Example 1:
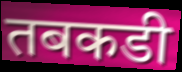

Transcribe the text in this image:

तबकडी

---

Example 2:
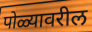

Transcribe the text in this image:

पोळ्यावरील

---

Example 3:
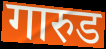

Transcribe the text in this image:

गारुड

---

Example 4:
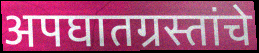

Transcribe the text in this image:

अपघातग्रस्तांचे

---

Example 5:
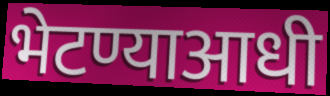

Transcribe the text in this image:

भेटण्याआधी